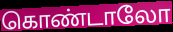
கொண்டாலோ